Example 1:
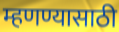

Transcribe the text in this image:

म्हणण्यासाठी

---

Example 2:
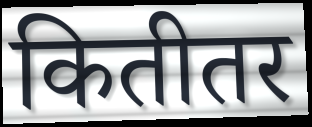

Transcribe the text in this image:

कितीतर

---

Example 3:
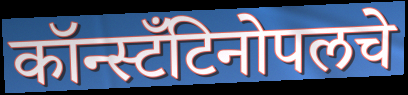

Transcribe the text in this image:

कॉन्स्टँटिनोपलचे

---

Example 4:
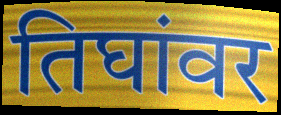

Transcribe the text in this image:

तिघांवर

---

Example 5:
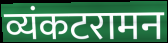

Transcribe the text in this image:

व्यंकटरामन